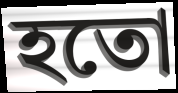
হতো